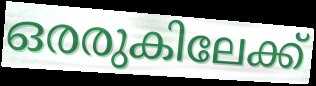
ഒരരുകിലേക്ക്